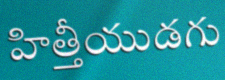
హిత్తీయుడగు